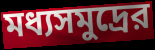
মধ্যসমুদ্রের